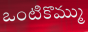
ఒంటికొమ్ము